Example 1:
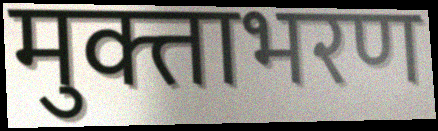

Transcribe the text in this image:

मुक्ताभरण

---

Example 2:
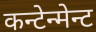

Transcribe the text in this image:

कन्टेन्मेन्ट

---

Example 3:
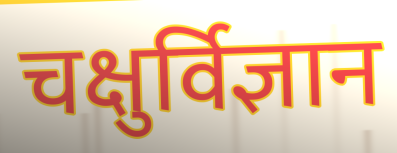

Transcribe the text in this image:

चक्षुर्विज्ञान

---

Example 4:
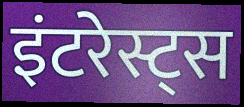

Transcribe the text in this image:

इंटरेस्ट्स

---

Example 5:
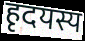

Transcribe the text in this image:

हृदयस्य